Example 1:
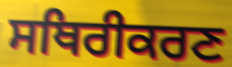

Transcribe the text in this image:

ਸਥਿਰੀਕਰਣ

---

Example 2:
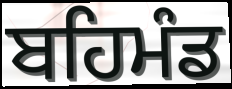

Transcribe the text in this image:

ਬਹਿਮੰਡ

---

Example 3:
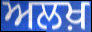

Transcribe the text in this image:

ਅਲਖ਼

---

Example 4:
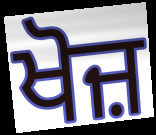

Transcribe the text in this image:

ਖੋਜ਼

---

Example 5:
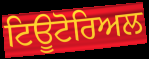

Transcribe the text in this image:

ਟਿਊਟੋਰਿਅਲ